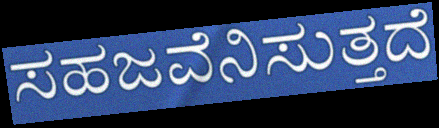
ಸಹಜವೆನಿಸುತ್ತದೆ